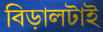
বিড়ালটাই